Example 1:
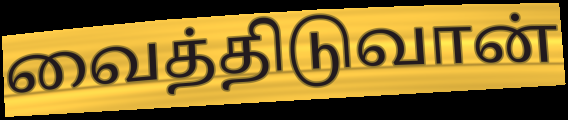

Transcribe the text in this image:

வைத்திடுவான்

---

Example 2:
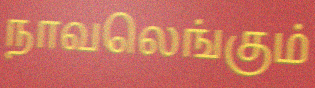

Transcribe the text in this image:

நாவலெங்கும்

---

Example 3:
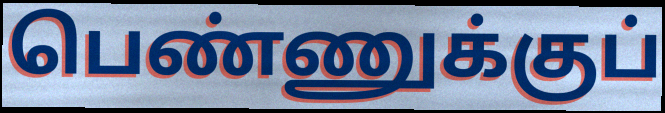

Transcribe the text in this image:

பெண்ணுக்குப்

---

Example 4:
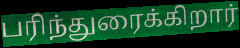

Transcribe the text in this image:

பரிந்துரைக்கிறார்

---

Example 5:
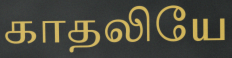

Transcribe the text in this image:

காதலியே